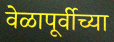
वेळापूर्वीच्या